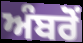
ਅੰਬਰੋਂ